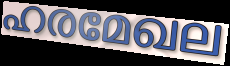
ഹരമേഖല